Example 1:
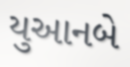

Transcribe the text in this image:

યુઆનબે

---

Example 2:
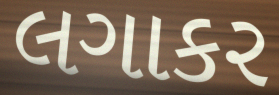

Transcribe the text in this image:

લગાકર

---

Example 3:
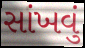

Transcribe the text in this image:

સાંખવું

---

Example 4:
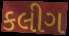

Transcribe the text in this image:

કલીગ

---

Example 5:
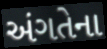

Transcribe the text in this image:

અંગતેના